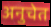
अनुचेत